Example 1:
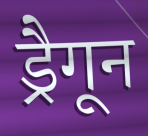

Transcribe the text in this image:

ड्रैगून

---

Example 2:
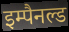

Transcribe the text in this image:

इम्पैनल्ड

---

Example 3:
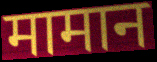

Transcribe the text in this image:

मामान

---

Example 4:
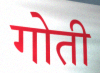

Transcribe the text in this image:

गोती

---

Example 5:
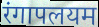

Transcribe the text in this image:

रंगापलयम